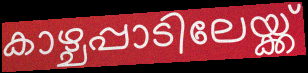
കാഴ്ചപ്പാടിലേയ്ക്ക്